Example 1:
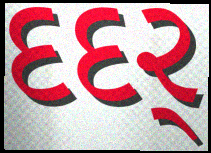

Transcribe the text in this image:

દદર્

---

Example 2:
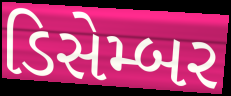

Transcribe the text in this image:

ડિસેમ્બર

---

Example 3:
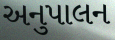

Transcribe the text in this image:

અનુપાલન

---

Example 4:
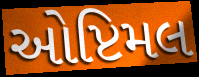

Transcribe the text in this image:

ઓપ્ટિમલ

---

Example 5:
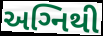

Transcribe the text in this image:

અગ્‍નિથી